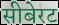
सीबेरट